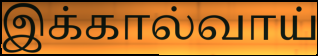
இக்கால்வாய்